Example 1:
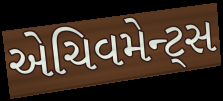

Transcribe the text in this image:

એચિવમેન્ટ્સ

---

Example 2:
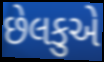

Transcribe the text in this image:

છેલકુએ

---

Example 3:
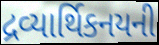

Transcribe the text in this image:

દ્રવ્યાર્થિકનયની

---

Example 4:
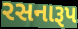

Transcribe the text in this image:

રસનારૂપ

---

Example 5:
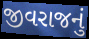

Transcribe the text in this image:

જીવરાજનું